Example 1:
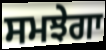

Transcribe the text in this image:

ਸਮਝੇਗਾ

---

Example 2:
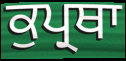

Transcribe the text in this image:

ਕੁਪ੍ਰਥਾ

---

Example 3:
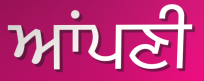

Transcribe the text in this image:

ਆਂਪਣੀ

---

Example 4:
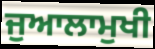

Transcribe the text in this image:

ਜੁਆਲਾਮੁਖੀ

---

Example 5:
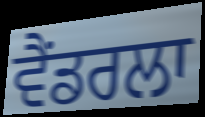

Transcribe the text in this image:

ਵੈਂਡਰਲਾ